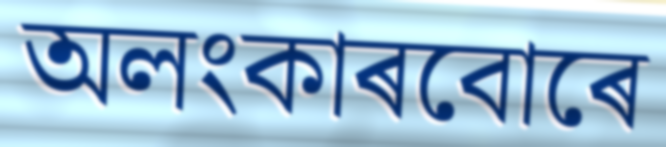
অলংকাৰবোৰে